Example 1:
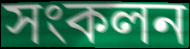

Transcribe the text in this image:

সংকলন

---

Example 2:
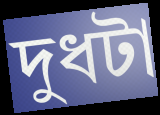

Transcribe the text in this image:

দুধটা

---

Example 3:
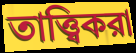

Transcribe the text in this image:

তাত্ত্বিকরা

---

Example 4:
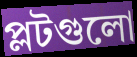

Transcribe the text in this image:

প্লটগুলো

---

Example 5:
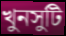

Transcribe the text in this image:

খুনসুটি